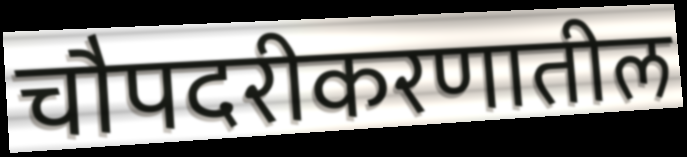
चौपदरीकरणातील